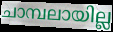
ചാമ്പലായില്ല